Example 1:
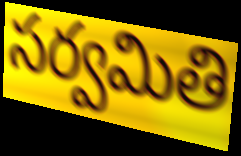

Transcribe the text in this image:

సర్వమితి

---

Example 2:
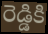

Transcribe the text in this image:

రెడ్డికి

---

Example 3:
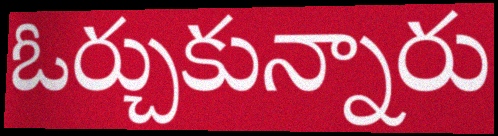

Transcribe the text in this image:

ఓర్చుకున్నారు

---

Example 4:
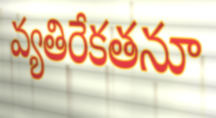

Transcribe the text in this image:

వ్యతిరేకతనూ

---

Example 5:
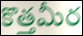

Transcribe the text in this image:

కొత్తమీర